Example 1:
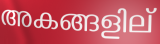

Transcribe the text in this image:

അകങ്ങളില്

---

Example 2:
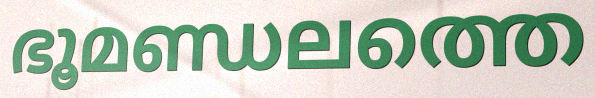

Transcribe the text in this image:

ഭൂമണ്ഡലത്തെ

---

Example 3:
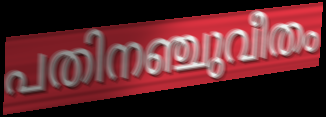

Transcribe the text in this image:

പതിനഞ്ചുവീതം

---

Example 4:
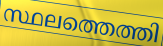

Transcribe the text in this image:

സ്ഥലത്തെത്തി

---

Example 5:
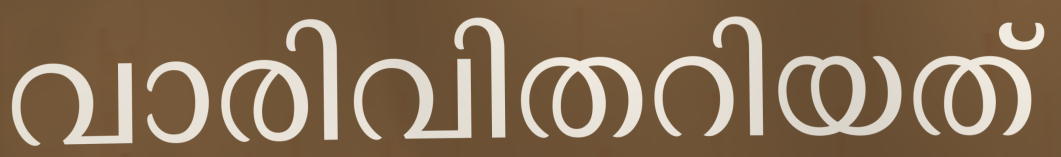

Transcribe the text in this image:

വാരിവിതറിയത്